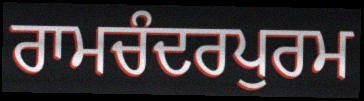
ਰਾਮਚੰਦਰਪੁਰਮ